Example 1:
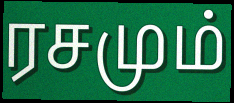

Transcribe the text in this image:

ரசமும்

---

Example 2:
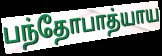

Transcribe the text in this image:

பந்தோபாத்யாய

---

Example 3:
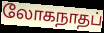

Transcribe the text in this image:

லோகநாதப்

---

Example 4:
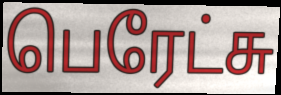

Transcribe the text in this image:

பெரேட்சு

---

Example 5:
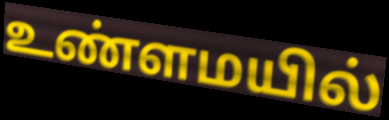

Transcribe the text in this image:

உண்ளமயில்